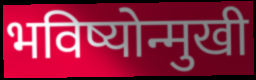
भविष्योन्मुखी